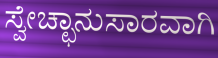
ಸ್ವೇಚ್ಛಾನುಸಾರವಾಗಿ